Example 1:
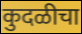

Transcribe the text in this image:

कुदळीचा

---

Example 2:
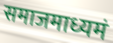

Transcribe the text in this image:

समाजमाध्यमं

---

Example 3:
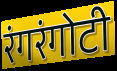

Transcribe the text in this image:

रंगरंगोटी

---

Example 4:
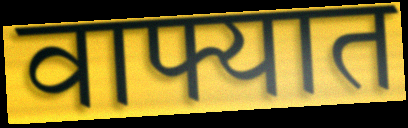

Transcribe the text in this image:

वाफ्यात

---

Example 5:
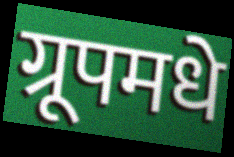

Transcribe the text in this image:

ग्रूपमधे